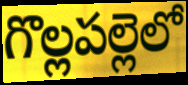
గొల్లపల్లెలో